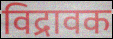
विद्रावक